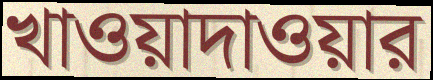
খাওয়াদাওয়ার